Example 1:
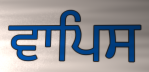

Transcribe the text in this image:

ਵਾਪਿਸ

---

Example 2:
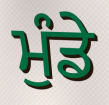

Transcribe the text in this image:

ਮੁੰਡੇ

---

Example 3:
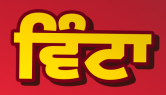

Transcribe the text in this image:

ਵਿੰਟਾ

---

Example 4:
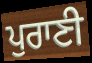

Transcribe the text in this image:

ਪੁਰਾਣੀ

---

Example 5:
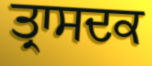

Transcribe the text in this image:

ਤ੍ਰਾਸਦਕ